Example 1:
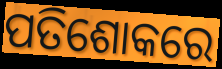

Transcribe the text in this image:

ପତିଶୋକରେ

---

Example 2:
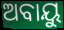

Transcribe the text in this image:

ଅବାୟୁ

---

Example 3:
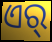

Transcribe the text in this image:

ଏର୍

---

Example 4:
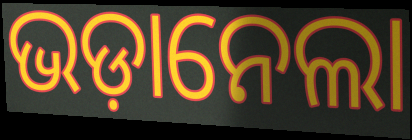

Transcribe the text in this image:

ଭଡ଼ାନେଲା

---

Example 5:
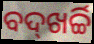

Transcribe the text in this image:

ବଦ୍‌ଖର୍ଚ୍ଚି